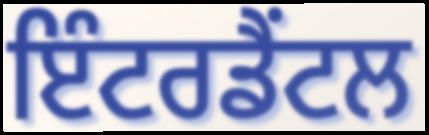
ਇੰਟਰਡੈਂਟਲ